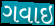
ગવાઇ